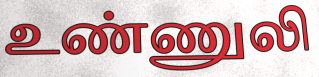
உண்ணுலி